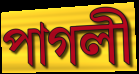
পাগলী